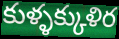
కుళ్ళక్కుళిర